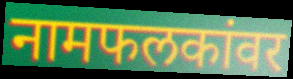
नामफलकांवर